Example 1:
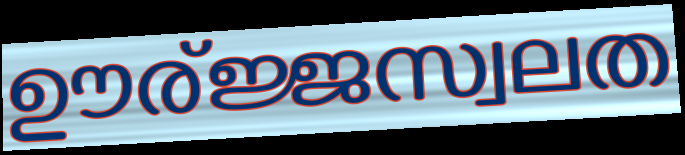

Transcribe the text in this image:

ഊര്ജ്ജസ്വലത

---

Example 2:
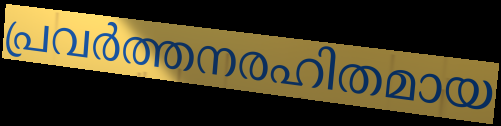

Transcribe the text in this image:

പ്രവർത്തനരഹിതമായ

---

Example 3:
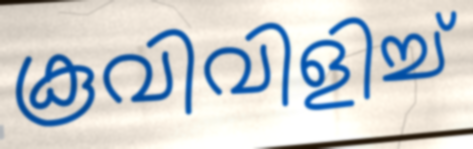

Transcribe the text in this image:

കൂവിവിളിച്ച്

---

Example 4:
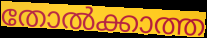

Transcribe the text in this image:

തോൽക്കാത്ത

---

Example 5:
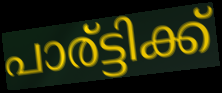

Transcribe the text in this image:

പാര്ട്ടിക്ക്